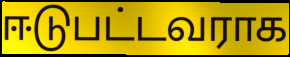
ஈடுபட்டவராக